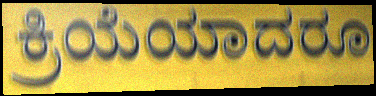
ಕ್ರಿಯೆಯಾದರೂ